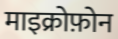
माइक्रोफ़ोन